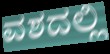
ವಶದಲ್ಲಿ